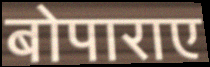
बोपाराए